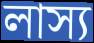
লাস্য